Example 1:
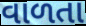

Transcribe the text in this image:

વાળતા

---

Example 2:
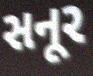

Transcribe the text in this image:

સનૂર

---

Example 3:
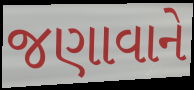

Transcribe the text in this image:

જણાવાને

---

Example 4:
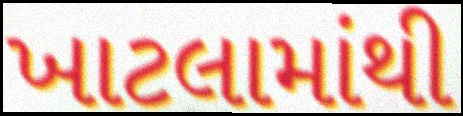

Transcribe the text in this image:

ખાટલામાંથી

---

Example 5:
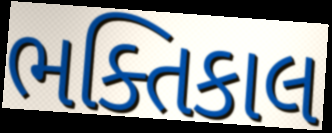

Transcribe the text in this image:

ભક્તિકાલ